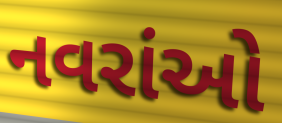
નવરાંઓ